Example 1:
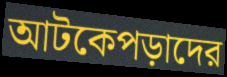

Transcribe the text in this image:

আটকেপড়াদের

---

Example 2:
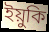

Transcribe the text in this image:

ইয়ুকি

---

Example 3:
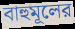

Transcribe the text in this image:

বাহুমূলের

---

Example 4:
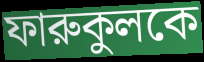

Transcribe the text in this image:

ফারুকুলকে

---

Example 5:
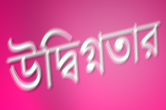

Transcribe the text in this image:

উদ্বিগ্নতার